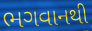
ભગવાનથી